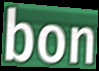
bon